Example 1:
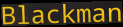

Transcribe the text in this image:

Blackman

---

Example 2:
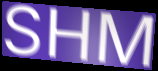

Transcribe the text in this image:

SHM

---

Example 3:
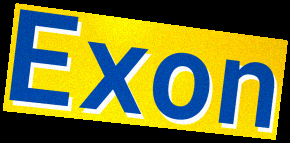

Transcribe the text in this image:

Exon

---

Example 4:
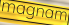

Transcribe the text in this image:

magnam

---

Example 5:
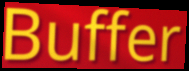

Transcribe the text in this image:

Buffer